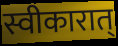
स्वीकारात्